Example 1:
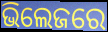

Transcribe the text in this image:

ଭିଲେଜରେ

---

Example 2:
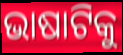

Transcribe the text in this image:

ଭାଷାଟିକୁ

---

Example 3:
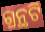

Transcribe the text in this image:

ଗ୍ରନ୍ଥଟି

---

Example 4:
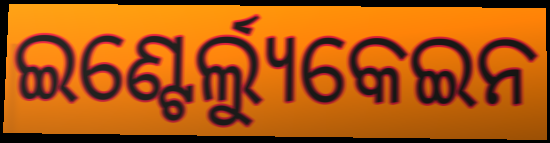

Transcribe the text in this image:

ଇଣ୍ଟେର୍ଲ୍ୟୁକେଇନ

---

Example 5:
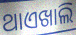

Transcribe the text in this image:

ଥାଏଖାଲି